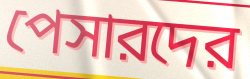
পেসারদের